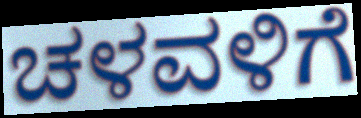
ಚಳವಳಿಗೆ